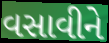
વસાવીને